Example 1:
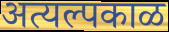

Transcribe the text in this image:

अत्यल्पकाळ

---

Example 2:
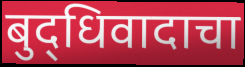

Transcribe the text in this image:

बुद्धिवादाचा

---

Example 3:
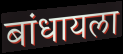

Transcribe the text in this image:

बांधायला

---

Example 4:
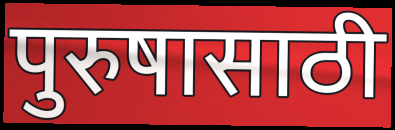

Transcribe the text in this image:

पुरुषासाठी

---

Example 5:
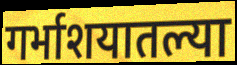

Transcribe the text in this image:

गर्भाशयातल्या